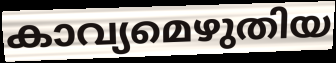
കാവ്യമെഴുതിയ